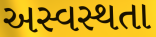
અસ્વસ્થતા